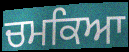
ਚਮਕਿਆ